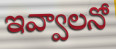
ఇవ్వాలనో